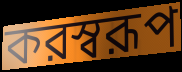
করস্বরূপ